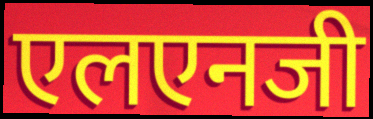
एलएनजी